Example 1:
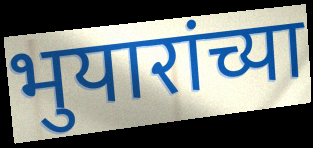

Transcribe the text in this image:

भुयारांच्या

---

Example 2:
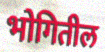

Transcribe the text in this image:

भोगितील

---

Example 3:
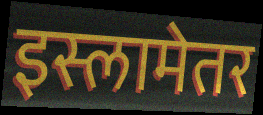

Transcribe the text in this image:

इस्लामेतर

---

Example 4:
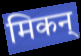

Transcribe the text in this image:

मिकन्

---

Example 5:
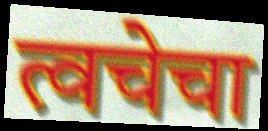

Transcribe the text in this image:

त्वचेचा